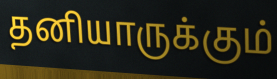
தனியாருக்கும்